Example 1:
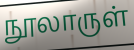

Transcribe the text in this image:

நூலாருள்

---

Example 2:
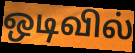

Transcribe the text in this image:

ஒடிவில்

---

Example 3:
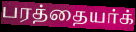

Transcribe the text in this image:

பரத்தையர்க்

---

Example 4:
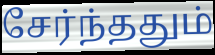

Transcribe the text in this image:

சேர்ந்ததும்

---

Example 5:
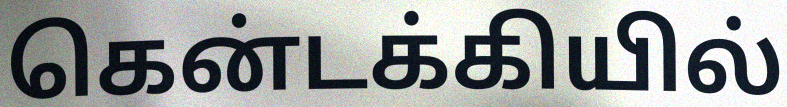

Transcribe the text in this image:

கென்டக்கியில்